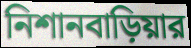
নিশানবাড়িয়ার